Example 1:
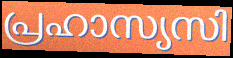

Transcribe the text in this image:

പ്രഹാസ്യസി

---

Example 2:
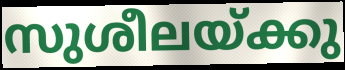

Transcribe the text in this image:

സുശീലയ്ക്കു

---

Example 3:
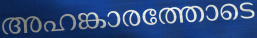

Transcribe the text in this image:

അഹങ്കാരത്തോടെ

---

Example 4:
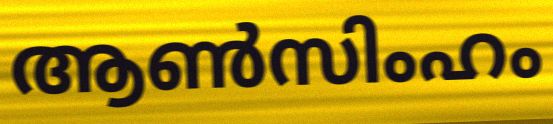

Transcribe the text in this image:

ആൺസിംഹം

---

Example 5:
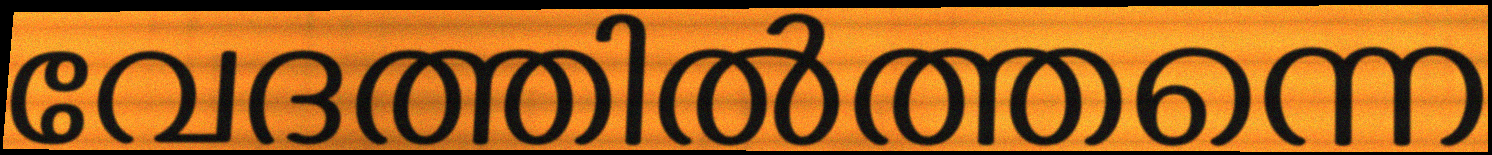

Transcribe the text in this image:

വേദത്തിൽത്തന്നെ